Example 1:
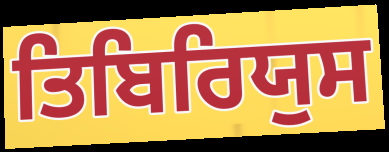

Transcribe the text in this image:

ਤਿਬਿਰਿਯੁਸ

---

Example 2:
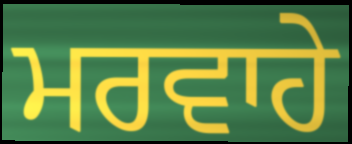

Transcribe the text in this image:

ਮਰਵਾਹੇ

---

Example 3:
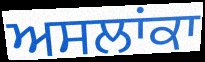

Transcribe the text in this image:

ਅਸਲਾਂਕਾ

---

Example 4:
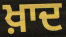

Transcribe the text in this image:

ਖ਼ਾਦ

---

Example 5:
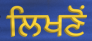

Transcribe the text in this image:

ਲਿਖਣੋਂ